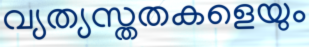
വ്യത്യസ്തതകളെയും